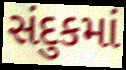
સંદુકમાં